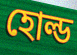
হোল্ড